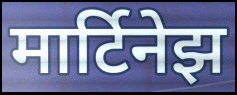
मार्टिनेझ